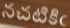
నచటికిఁ